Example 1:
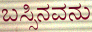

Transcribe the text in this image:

ಬಸ್ಸಿನವನು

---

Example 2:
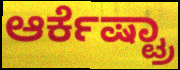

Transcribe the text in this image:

ಆರ್ಕೆಷ್ಟ್ರಾ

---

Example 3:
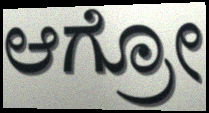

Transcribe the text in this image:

ಆಗ್ರೋ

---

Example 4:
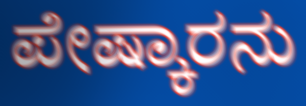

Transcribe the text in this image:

ಪೇಷ್ಕಾರನು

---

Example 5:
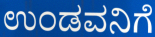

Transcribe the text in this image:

ಉಂಡವನಿಗೆ